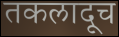
तकलादूच